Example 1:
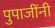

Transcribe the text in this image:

पुपाजींनी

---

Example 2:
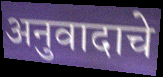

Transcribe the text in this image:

अनुवादाचे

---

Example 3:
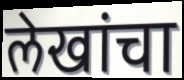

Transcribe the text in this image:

लेखांचा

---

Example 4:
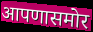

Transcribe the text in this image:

आपणासमोर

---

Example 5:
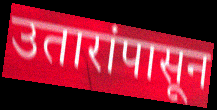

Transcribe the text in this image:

उतारांपासून